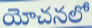
యోచనలో